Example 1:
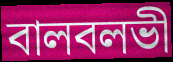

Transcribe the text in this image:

বালবলভী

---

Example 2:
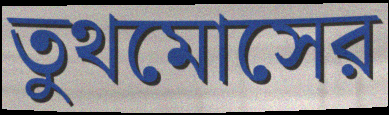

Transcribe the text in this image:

তুথমোসের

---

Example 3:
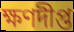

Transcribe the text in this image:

ক্ষণদীপ্ত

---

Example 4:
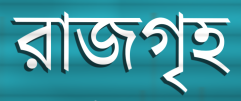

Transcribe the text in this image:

রাজগৃহ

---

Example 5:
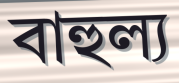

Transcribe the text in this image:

বাহুল্য